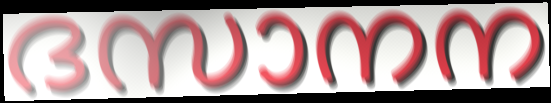
ദസാനന